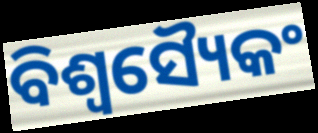
ବିଶ୍ୱସ୍ୟୈକଂ